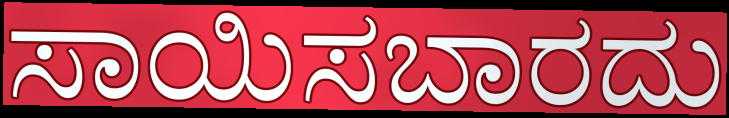
ಸಾಯಿಸಬಾರದು